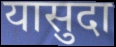
यासुदा